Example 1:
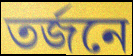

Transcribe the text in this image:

তর্জনে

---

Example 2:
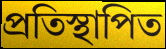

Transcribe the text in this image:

প্রতিস্থাপিত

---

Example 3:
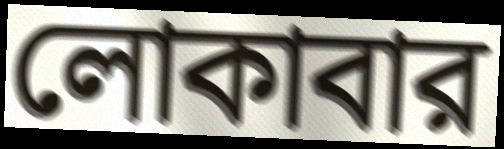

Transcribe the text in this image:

লোকাবার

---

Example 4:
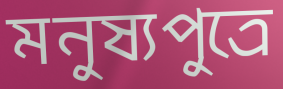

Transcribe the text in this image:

মনুষ্যপুত্রে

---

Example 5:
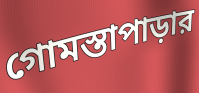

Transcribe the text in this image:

গোমস্তাপাড়ার